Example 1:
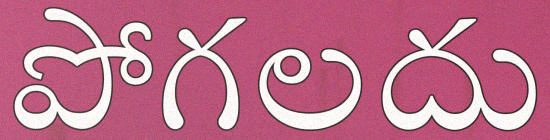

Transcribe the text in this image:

పోగలదు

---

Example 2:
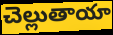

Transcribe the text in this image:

చెల్లుతాయా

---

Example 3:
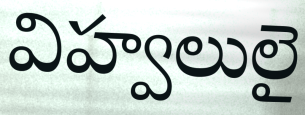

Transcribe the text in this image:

విహ్వలులై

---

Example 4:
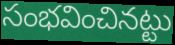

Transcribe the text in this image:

సంభవించినట్టు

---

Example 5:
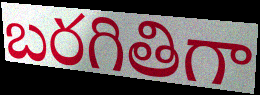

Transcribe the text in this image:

బరగితిగా